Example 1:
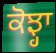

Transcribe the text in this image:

ਕੋਝ੍ਹਾ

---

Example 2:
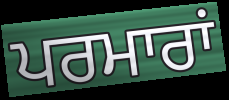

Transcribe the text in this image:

ਪਰਮਾਰਾਂ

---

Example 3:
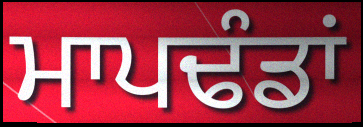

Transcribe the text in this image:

ਮਾਪਢੰਡਾਂ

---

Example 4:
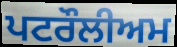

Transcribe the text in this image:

ਪਟਰੌਲੀਅਮ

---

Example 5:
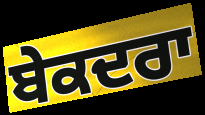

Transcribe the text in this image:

ਬੇਕਦਰਾ